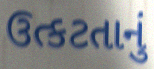
ઉત્કટતાનું